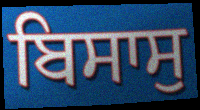
ਬਿਸਾਸੁ